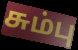
சும்பு